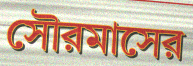
সৌরমাসের